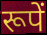
रूपें